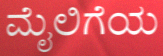
ಮೈಲಿಗೆಯ